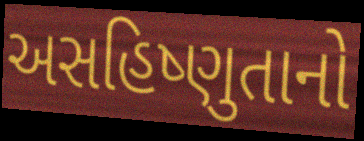
અસહિષ્ણુતાનો